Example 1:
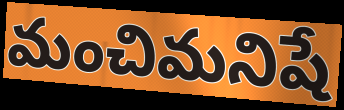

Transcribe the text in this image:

మంచిమనిషే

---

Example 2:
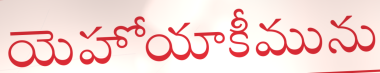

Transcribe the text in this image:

యెహోయాకీమును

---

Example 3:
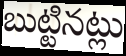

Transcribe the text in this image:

బుట్టినట్లు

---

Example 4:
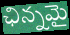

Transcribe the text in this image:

ఛిన్నమై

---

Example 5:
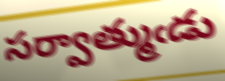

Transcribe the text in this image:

సర్వాత్ముఁడు